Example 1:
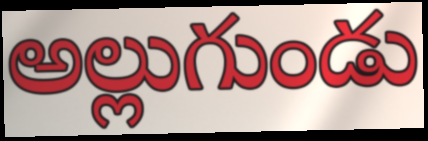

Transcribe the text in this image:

అల్లుగుండు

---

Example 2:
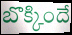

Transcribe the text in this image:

బొక్కిందే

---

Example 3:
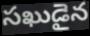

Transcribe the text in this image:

సఖుడైన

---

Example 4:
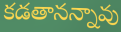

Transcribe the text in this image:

కడతానన్నావు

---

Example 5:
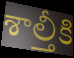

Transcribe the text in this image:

శాల్తీకి